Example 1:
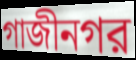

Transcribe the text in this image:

গাজীনগর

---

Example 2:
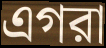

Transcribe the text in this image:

এগরা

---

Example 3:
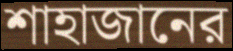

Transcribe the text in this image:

শাহাজানের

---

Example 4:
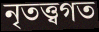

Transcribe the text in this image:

নৃতত্ত্বগত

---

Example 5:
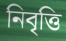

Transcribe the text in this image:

নিবৃত্তি